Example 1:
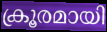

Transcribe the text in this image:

ക്രൂരമായി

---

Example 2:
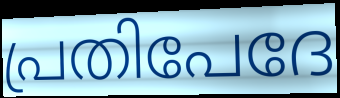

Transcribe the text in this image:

പ്രതിപേദേ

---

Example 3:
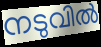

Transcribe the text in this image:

നടുവിൽ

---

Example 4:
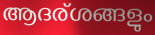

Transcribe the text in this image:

ആദര്ശങ്ങളും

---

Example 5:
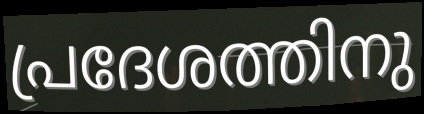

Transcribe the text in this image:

പ്രദേശത്തിനു